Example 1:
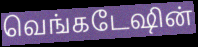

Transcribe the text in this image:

வெங்கடேஷின்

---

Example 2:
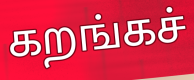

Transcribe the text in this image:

கறங்கச்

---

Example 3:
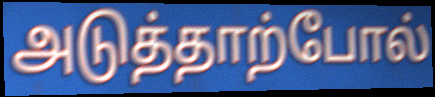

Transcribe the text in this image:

அடுத்தாற்போல்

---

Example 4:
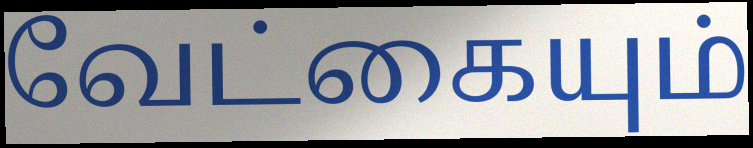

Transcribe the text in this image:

வேட்கையும்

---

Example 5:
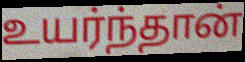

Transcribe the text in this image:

உயர்ந்தான்